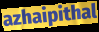
azhaipithal